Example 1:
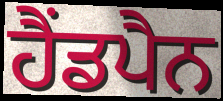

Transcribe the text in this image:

ਹੈਂਡਪੈਨ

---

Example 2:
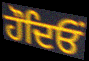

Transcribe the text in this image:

ਹੌਦਿਓਂ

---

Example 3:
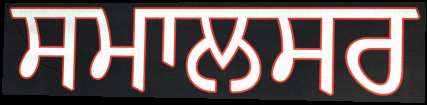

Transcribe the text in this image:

ਸਮਾਲਸਰ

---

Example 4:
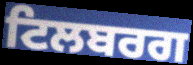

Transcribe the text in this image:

ਟਿਲਬਰਗ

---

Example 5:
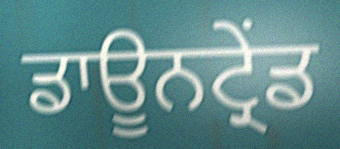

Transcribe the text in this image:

ਡਾਊਨਟ੍ਰੇਂਡ